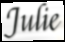
Julie